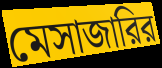
মেসাজারির